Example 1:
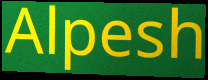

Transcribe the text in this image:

Alpesh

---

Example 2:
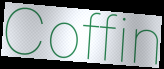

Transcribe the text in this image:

Coffin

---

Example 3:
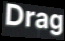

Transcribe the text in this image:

Drag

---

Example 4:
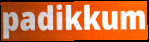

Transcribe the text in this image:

padikkum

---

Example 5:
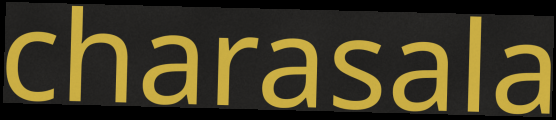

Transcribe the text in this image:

charasala